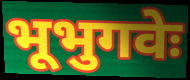
भूभुगवेः